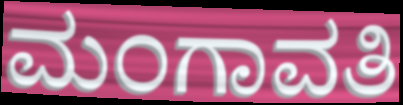
ಮಂಗಾವತಿ